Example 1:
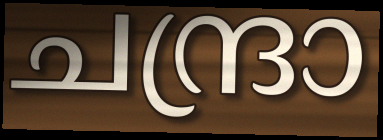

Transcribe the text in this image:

ചന്ദ്രാ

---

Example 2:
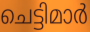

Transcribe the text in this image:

ചെട്ടിമാർ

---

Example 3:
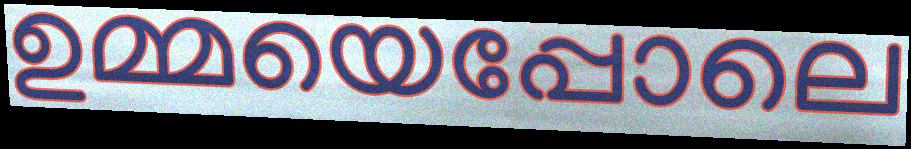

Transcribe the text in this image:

ഉമ്മയെപ്പോലെ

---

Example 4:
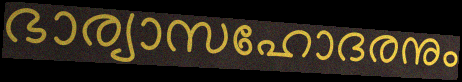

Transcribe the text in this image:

ഭാര്യാസഹോദരനും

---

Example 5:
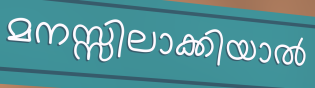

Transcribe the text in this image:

മനസ്സിലാക്കിയാൽ